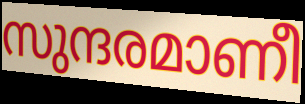
സുന്ദരമാണീ